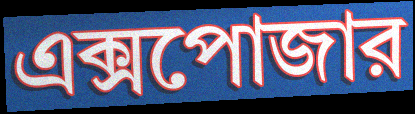
এক্সপোজার